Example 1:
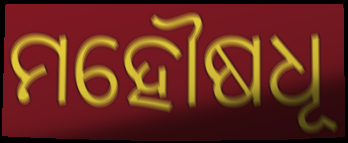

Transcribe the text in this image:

ମହୌଷଧୂ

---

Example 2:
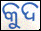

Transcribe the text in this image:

କୁଦ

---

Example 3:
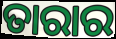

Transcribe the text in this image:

ତାରାର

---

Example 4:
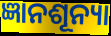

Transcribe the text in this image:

ଜ୍ଞାନଶୂନ୍ୟା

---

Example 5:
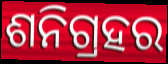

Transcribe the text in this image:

ଶନିଗ୍ରହର